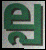
ല്പ